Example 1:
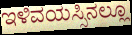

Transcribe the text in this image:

ಇಳಿವಯಸ್ಸಿನಲ್ಲೂ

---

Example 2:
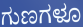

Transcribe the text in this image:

ಗುಣಗಳೂ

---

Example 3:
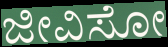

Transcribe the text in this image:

ಜೀವಿಸೋ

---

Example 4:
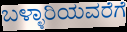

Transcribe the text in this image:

ಬಳ್ಳಾರಿಯವರೆಗೆ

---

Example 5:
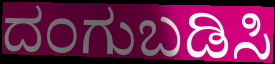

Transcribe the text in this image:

ದಂಗುಬಡಿಸಿ